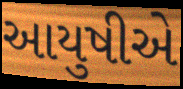
આયુષીએ